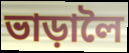
ভাড়ালৈ